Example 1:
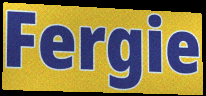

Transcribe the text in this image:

Fergie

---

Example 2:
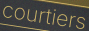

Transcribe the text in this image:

courtiers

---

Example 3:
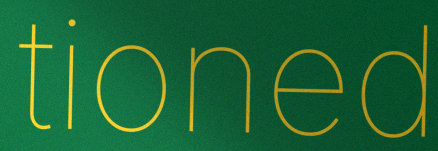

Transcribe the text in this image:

tioned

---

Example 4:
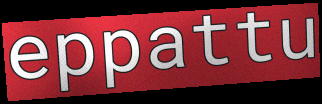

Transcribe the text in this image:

eppattu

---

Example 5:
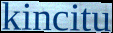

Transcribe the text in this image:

kincitu